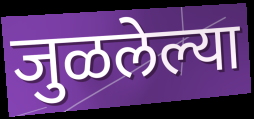
जुळलेल्या